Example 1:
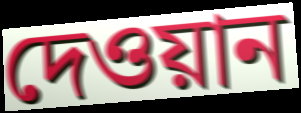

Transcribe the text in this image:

দেওয়ান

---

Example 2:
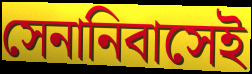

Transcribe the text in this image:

সেনানিবাসেই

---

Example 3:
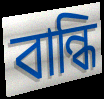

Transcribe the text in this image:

বান্ধি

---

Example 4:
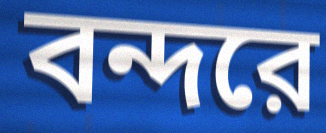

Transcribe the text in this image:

বন্দরে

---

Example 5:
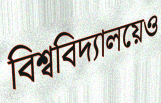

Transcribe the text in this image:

বিশ্ববিদ্যালয়েও